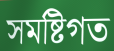
সমষ্টিগত